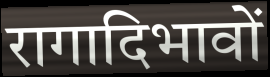
रागादिभावों